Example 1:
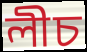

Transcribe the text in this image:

লীচ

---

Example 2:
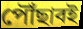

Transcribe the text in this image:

পৌঁছাবই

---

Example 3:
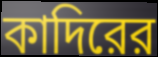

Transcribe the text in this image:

কাদিরের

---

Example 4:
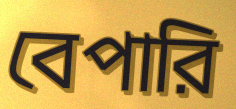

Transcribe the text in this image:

বেপারি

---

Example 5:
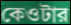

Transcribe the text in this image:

কেওটার